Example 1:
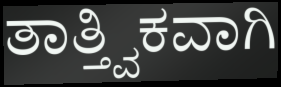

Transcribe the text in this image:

ತಾತ್ತ್ವಿಕವಾಗಿ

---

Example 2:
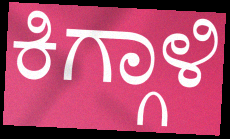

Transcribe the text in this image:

ಕಿಗ್ಗಾಳಿ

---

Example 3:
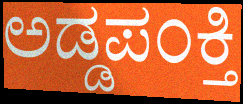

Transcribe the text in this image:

ಅಡ್ಡಪಂಕ್ತಿ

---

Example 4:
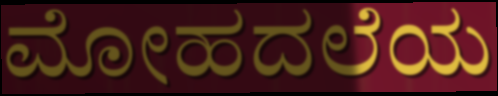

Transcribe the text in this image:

ಮೋಹದಲೆಯ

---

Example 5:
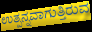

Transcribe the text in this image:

ಉತ್ಪನ್ನವಾಗುತ್ತಿರುವ